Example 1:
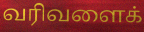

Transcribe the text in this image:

வரிவளைக்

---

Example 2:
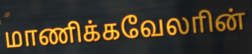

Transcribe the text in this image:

மாணிக்கவேலரின்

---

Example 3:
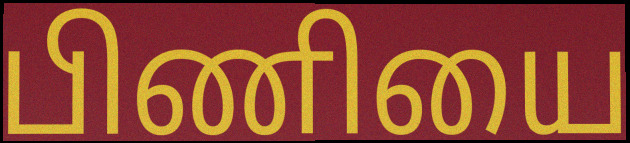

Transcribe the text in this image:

பிணியை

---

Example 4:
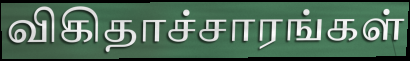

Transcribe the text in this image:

விகிதாச்சாரங்கள்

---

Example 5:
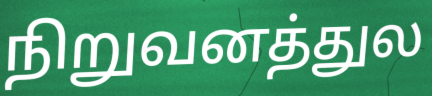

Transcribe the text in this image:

நிறுவனத்துல